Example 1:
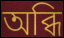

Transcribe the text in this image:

অব্ধি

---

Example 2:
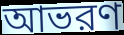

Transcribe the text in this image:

আভরণ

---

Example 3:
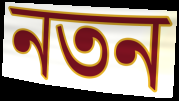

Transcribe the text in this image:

নতন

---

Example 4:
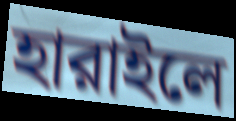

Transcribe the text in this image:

হারাইলে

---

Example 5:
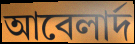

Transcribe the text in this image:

আবেলার্দ